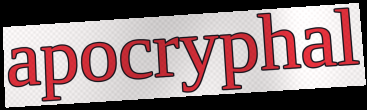
apocryphal